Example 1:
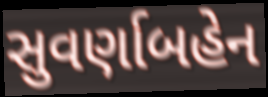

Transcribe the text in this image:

સુવર્ણાબહેન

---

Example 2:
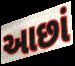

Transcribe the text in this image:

આછાં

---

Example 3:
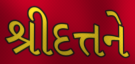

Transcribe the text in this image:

શ્રીદત્તને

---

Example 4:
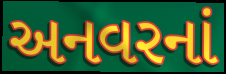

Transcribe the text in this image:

અનવરનાં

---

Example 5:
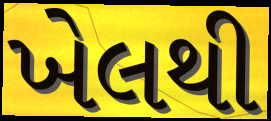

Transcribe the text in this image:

ખેલથી